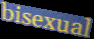
bisexual